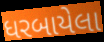
ધરબાયેલા